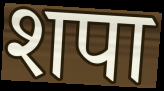
शपा